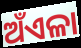
ଅଁଏଳା